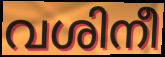
വശിനീ